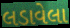
લડાવેલા